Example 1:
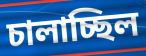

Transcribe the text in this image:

চালাচ্ছিল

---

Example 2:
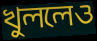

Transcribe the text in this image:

খুললেও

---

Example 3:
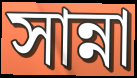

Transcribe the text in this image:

সান্না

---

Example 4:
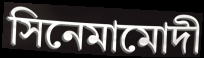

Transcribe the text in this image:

সিনেমামোদী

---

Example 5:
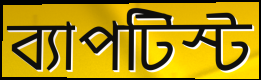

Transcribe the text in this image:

ব্যাপটিস্ট